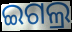
ଇଗଲ୍ର